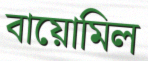
বায়োমিল